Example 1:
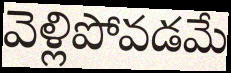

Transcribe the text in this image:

వెళ్లిపోవడమే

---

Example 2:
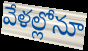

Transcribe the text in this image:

వేళల్లోనూ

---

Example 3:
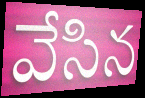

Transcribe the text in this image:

వేసిన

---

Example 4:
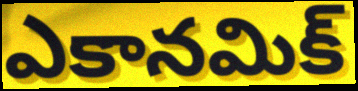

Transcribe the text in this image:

ఎకానమిక్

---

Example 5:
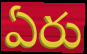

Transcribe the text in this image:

ఏరు